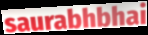
saurabhbhai